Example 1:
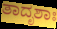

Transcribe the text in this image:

ತಾದೃಶಾಃ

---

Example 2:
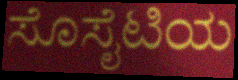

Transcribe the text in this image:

ಸೊಸೈಟಿಯ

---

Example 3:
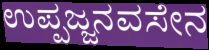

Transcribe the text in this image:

ಉಪ್ಪಜ್ಜನವಸೇನ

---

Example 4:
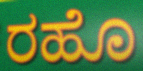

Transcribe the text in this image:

ರಹೊ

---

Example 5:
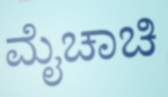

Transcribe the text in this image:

ಮೈಚಾಚಿ